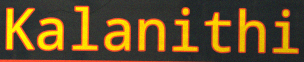
Kalanithi